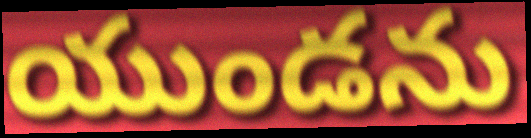
యుండను